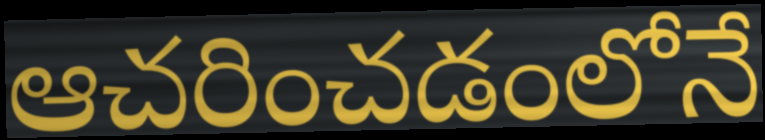
ఆచరించడంలోనే